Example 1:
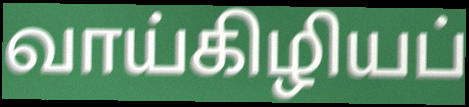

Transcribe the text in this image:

வாய்கிழியப்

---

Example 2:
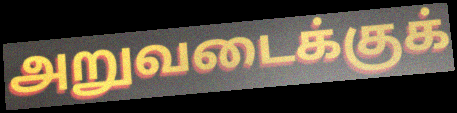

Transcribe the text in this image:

அறுவடைக்குக்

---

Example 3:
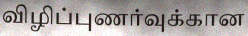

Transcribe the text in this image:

விழிப்புணர்வுக்கான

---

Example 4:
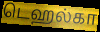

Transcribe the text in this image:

டெஹல்கா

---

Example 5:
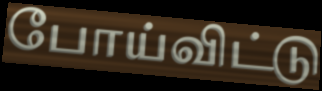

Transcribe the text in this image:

போய்விட்டு